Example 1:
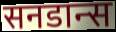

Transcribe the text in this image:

सनडान्स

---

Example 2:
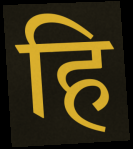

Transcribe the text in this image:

हि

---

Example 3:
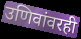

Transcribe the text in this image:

उणिवांवरही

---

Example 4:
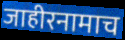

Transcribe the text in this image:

जाहीरनामाच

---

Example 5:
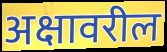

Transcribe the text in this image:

अक्षावरील